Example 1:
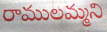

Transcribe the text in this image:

రాములమ్మని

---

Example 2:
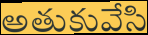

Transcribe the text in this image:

అతుకువేసి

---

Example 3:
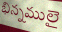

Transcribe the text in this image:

భిన్నములై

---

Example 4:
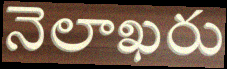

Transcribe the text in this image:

నెలాఖరు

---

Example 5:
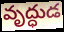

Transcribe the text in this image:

వృద్ధుడ